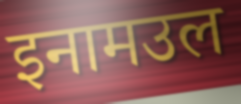
इनामउल